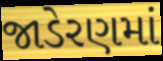
જાડેરણમાં